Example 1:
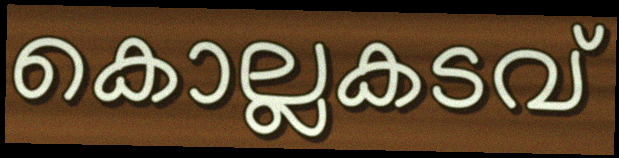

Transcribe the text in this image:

കൊല്ലകടവ്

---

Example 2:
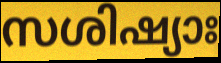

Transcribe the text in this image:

സശിഷ്യാഃ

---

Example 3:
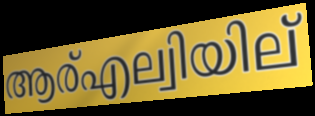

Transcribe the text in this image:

ആര്എല്വിയില്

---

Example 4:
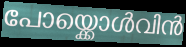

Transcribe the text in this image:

പോയ്ക്കൊൾവിൻ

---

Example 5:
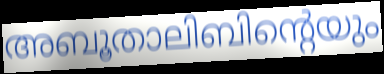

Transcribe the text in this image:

അബൂതാലിബിന്റെയും